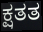
ಕ್ಷತತ